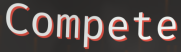
Compete